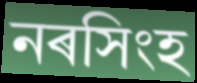
নৰসিংহ